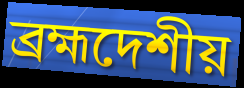
ব্রহ্মদেশীয়